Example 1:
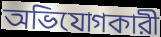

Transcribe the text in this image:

অভিযোগকারী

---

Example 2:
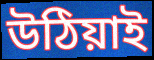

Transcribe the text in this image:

উঠিয়াই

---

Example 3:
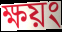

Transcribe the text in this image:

ক্ষয়ং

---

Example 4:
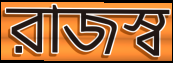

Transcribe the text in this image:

রাজস্ব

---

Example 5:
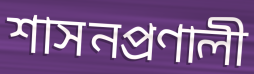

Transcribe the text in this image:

শাসনপ্রণালী